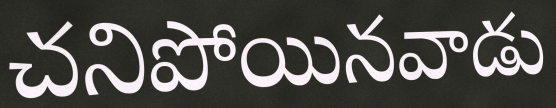
చనిపోయినవాడు